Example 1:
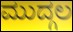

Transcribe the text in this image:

ಮುದ್ಗಲ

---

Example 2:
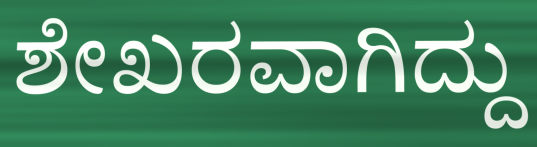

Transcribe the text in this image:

ಶೇಖರವಾಗಿದ್ದು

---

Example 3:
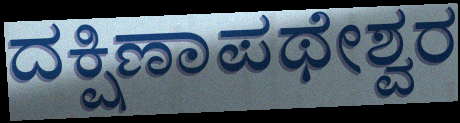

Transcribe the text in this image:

ದಕ್ಷಿಣಾಪಥೇಶ್ವರ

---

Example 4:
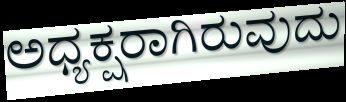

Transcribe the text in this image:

ಅಧ್ಯಕ್ಷರಾಗಿರುವುದು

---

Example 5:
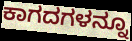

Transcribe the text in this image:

ಕಾಗದಗಳನ್ನೂ